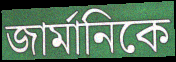
জার্মানিকে